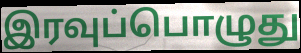
இரவுப்பொழுது